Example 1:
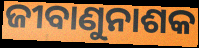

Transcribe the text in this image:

ଜୀବାଣୁନାଶକ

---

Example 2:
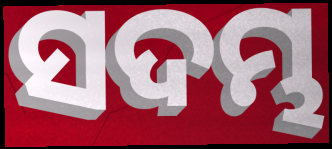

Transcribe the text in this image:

ସଦମ୍ଭ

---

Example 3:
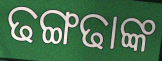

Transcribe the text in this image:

ଢଙ୍ଗଢାଙ୍କ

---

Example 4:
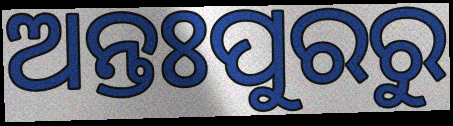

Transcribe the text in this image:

ଅନ୍ତଃପୁରରୁ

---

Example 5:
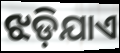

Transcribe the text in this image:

ଝଡ଼ିଯାଏ